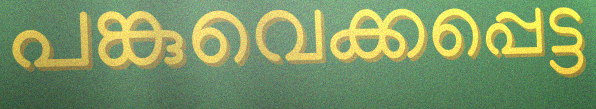
പങ്കുവെക്കപ്പെട്ട